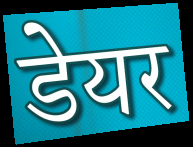
डेयर